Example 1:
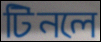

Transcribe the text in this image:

টিনলে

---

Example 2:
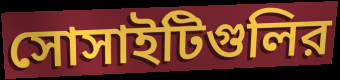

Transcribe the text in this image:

সোসাইটিগুলির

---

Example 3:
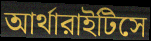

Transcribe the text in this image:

আর্থারাইটিসে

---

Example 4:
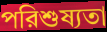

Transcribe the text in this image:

পরিশুষ্যতা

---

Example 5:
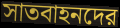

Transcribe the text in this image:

সাতবাহনদের